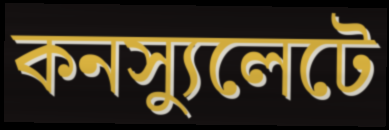
কনস্যুলেটে